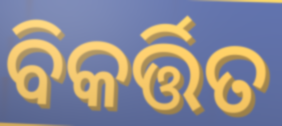
ବିକର୍ତ୍ତିତ